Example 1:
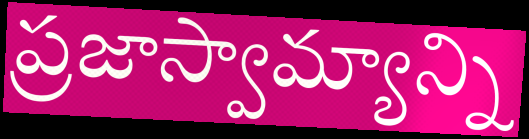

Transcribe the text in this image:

ప్రజాస్వామ్యాన్ని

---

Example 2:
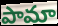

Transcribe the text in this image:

పామా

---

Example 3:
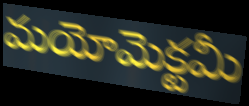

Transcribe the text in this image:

మయోమెక్టమీ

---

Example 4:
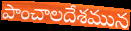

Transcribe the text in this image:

పాంచాలదేశమున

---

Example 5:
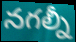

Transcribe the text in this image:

నగల్నీ